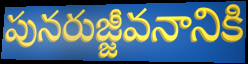
పునరుజ్జీవనానికి